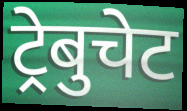
ट्रेबुचेट